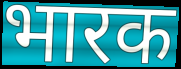
भारक